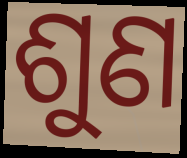
ଶୁଣ